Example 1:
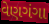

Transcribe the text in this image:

વેણગંગા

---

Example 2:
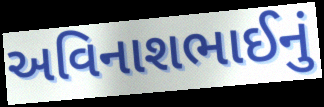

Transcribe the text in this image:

અવિનાશભાઈનું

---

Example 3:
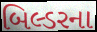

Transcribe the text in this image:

બિલ્ડરના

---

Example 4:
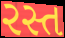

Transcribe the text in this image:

રસ્ત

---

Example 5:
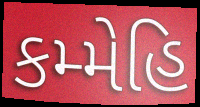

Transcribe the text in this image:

કમ્મેહિ